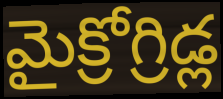
మైక్రోగ్రిడ్ల